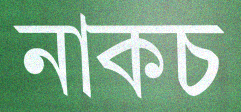
নাকচ